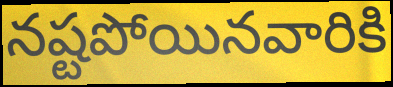
నష్టపోయినవారికి